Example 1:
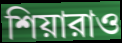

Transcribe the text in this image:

শিয়ারাও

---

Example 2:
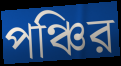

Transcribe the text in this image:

পঞ্চির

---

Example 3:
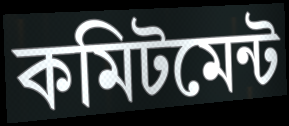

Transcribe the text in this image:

কমিটমেন্ট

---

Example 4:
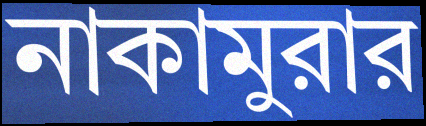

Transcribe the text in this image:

নাকামুরার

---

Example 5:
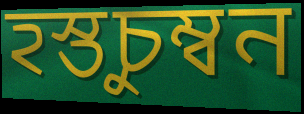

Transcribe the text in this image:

হস্তচুম্বন